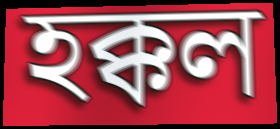
হক্কল